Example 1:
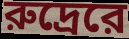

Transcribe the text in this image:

রুদ্রেরে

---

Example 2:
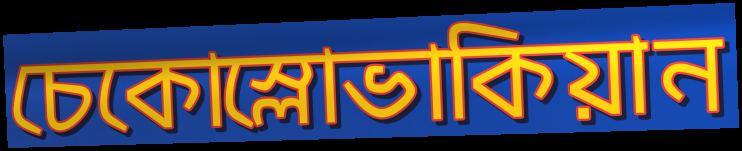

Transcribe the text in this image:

চেকোস্লোভাকিয়ান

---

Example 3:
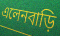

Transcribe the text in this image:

এলেনবাড়ি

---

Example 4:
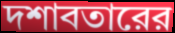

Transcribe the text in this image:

দশাবতারের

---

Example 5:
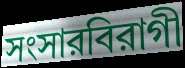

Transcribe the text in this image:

সংসারবিরাগী